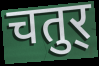
चतुर्